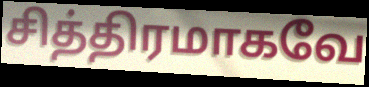
சித்திரமாகவே